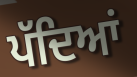
ਪੱਦਿਆਂ